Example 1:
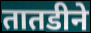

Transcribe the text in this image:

तातडीने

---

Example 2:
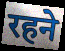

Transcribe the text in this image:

रहने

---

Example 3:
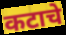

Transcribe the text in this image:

कटाचे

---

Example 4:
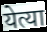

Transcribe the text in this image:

येत्या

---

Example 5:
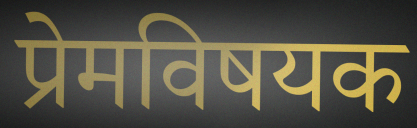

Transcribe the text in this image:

प्रेमविषयक